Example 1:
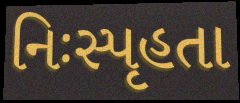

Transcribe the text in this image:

નિઃસ્પૃહતા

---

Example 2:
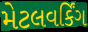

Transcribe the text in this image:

મેટલવર્કિંગ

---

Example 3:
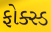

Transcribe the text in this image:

ફોક્સ્ડ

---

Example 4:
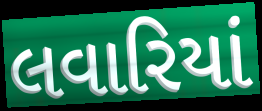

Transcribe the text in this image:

લવારિયાં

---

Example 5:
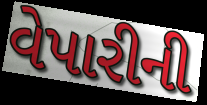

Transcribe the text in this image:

વેપારીની